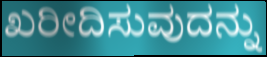
ಖರೀದಿಸುವುದನ್ನು